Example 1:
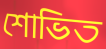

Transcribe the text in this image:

শোভিত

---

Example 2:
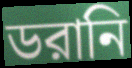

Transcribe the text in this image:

ডরানি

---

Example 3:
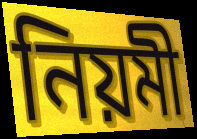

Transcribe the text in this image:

নিয়মী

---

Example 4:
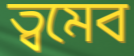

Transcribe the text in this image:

ত্বমেব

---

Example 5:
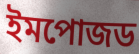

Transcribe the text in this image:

ইমপোজড